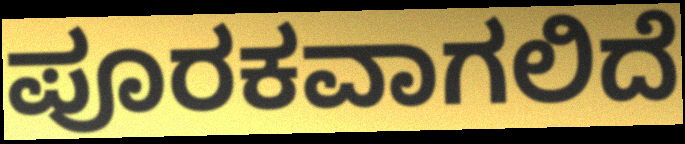
ಪೂರಕವಾಗಲಿದೆ